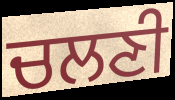
ਚਲਣੀ